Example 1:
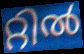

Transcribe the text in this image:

റ്റിൽ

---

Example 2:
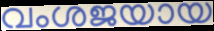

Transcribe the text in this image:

വംശജയായ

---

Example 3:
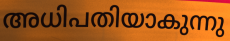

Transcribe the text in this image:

അധിപതിയാകുന്നു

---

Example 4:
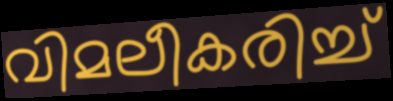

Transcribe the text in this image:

വിമലീകരിച്ച്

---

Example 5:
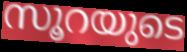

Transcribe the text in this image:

സൂറയുടെ